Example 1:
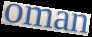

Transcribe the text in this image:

oman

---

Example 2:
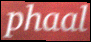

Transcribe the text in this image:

phaal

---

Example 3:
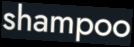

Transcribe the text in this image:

shampoo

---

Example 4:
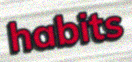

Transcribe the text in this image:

habits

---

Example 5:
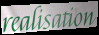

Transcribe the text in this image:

realisation